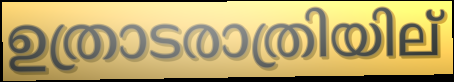
ഉത്രാടരാത്രിയില്